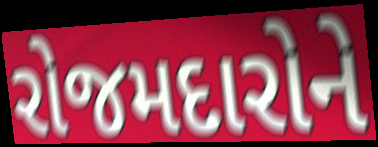
રોજમદારોને